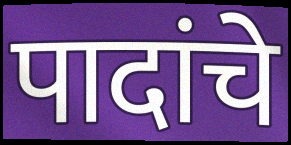
पादांचे